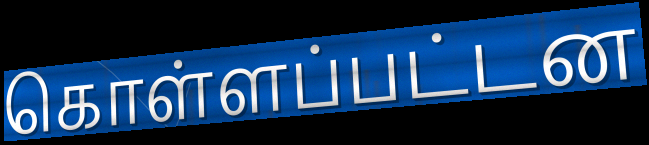
கொள்ளப்பட்டன